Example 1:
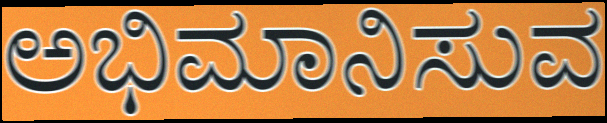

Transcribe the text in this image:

ಅಭಿಮಾನಿಸುವ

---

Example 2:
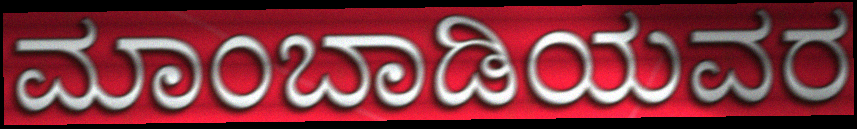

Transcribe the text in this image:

ಮಾಂಬಾಡಿಯವರ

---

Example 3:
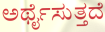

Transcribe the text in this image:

ಅರ್ಥೈಸುತ್ತದೆ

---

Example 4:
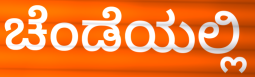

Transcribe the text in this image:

ಚೆಂಡೆಯಲ್ಲಿ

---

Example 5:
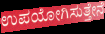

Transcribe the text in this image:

ಉಪಯೋಗಿಸುತ್ತೇನೆ